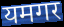
यमगर